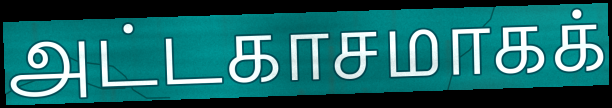
அட்டகாசமாகக்